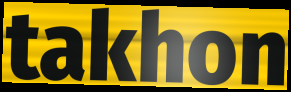
takhon